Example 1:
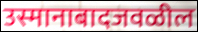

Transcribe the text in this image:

उस्मानाबादजवळील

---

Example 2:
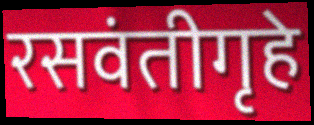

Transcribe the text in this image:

रसवंतीगृहे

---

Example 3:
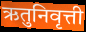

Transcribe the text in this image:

ऋतुनिवृत्ती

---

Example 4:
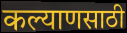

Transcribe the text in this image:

कल्याणसाठी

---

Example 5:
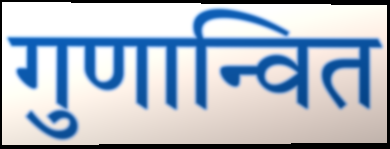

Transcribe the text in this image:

गुणान्वित